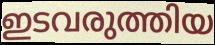
ഇടവരുത്തിയ